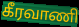
கீரவாணி